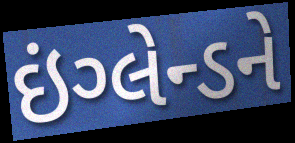
ઇંગ્લેન્ડને